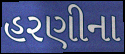
હરણીના